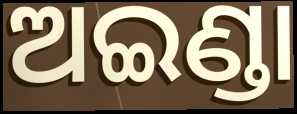
ଅଇଣ୍ଡା